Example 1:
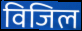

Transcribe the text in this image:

विजिल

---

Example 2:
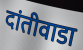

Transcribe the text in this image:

दांतीवाडा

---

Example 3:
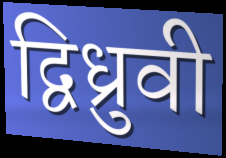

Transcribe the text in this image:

द्विध्रुवी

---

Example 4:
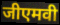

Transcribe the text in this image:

जीएमवी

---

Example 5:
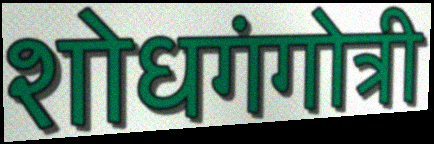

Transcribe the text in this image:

शोधगंगोत्री